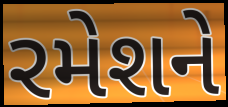
રમેશને